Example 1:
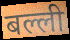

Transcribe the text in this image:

बल्ली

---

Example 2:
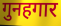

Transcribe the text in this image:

गुनहगार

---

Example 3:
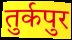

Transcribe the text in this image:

तुर्कपुर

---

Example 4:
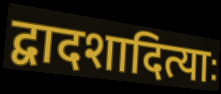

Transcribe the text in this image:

द्वादशादित्याः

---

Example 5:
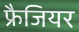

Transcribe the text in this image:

फ्रैजियर